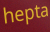
hepta